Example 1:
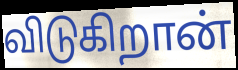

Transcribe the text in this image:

விடுகிறான்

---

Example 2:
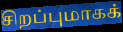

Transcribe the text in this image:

சிறப்புமாகக்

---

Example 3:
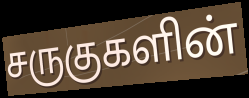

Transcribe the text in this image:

சருகுகளின்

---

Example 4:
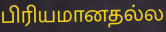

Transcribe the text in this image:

பிரியமானதல்ல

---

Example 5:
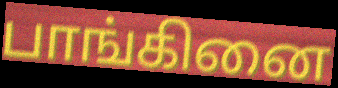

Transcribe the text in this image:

பாங்கினை